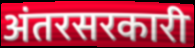
अंतरसरकारी